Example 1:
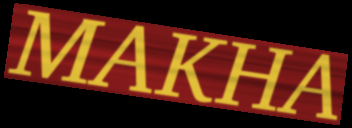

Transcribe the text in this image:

MAKHA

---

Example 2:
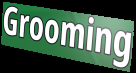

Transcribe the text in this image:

Grooming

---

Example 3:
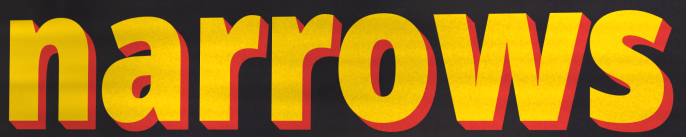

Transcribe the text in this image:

narrows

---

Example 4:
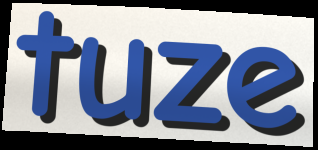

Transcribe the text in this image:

tuze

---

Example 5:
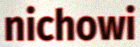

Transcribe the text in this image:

nichowi